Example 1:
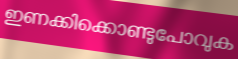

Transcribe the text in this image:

ഇണക്കിക്കൊണ്ടുപോവുക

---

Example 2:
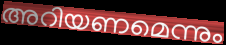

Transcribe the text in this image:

അറിയണമെന്നും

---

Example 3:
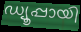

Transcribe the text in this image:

ഡ്യൂപ്പായി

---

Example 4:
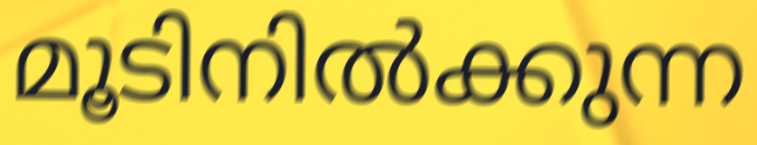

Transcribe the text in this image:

മൂടിനിൽക്കുന്ന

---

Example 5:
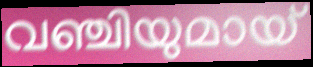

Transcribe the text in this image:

വഞ്ചിയുമായ്